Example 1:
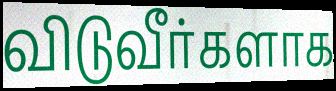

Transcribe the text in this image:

விடுவீர்களாக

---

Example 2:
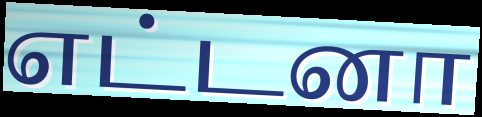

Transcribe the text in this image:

எட்டனா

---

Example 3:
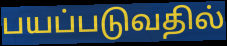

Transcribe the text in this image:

பயப்படுவதில்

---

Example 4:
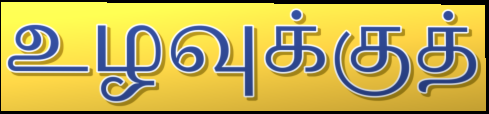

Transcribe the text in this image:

உழவுக்குத்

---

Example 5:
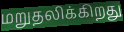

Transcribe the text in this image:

மறுதலிக்கிறது